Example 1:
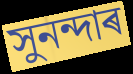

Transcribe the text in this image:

সুনন্দাৰ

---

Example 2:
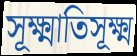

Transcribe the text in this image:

সূক্ষ্মাতিসূক্ষ্ম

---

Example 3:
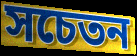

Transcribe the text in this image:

সচেতন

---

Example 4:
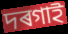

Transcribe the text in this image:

দৰগাই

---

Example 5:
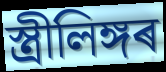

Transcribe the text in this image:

স্ত্ৰীলিঙ্গৰ